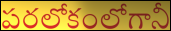
పరలోకంలోగానీ